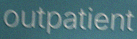
outpatient